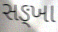
સઙ્ખા